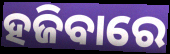
ହଜିବାରେ